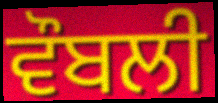
ਵੌਬਲੀ